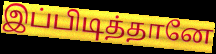
இப்பிடித்தானே